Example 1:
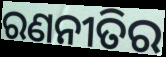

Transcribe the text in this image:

ରଣନୀତିର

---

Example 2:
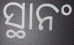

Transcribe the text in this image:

ସ୍ଥାନଂ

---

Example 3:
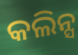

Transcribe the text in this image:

କଲିନ୍ସ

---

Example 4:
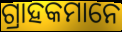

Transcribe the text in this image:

ଗ୍ରାହକମାନେ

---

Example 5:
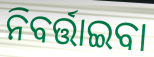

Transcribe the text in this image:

ନିବର୍ତ୍ତାଇବା